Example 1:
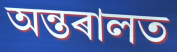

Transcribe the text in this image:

অন্তৰালত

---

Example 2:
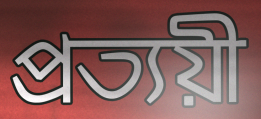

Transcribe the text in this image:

প্ৰত্যয়ী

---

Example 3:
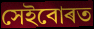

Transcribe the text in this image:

সেইবোৰত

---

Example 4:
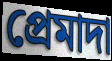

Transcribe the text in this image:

প্ৰেমাদা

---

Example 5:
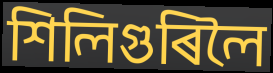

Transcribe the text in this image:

শিলিগুৰিলৈ